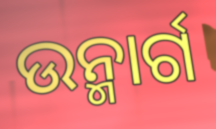
ଉନ୍ମାର୍ଗ